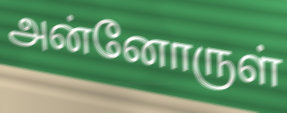
அன்னோருள்